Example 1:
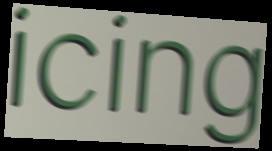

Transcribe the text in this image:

icing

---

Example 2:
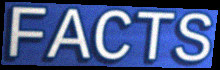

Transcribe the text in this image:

FACTS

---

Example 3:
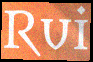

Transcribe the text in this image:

Rui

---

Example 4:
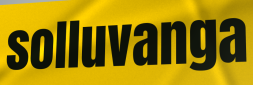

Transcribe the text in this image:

solluvanga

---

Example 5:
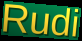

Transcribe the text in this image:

Rudi